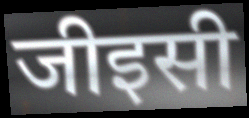
जीइसी